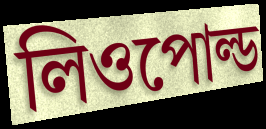
লিওপোল্ড